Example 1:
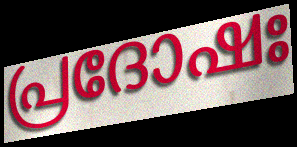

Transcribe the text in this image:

പ്രദോഷഃ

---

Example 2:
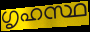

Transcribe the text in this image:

ഗൃഹസ്ഥ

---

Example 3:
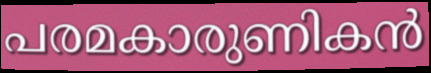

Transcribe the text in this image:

പരമകാരുണികൻ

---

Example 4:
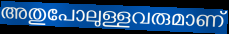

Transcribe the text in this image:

അതുപോലുള്ളവരുമാണ്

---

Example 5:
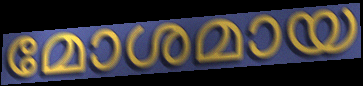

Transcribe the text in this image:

മോശമായ